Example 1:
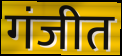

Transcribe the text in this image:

गंजीत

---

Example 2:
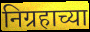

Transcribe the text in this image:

निग्रहाच्या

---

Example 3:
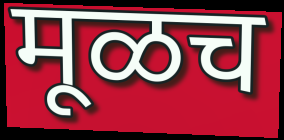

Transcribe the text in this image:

मूळच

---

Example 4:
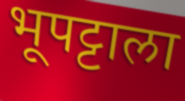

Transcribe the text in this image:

भूपट्टाला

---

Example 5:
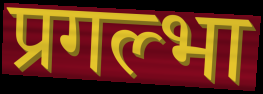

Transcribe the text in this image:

प्रगल्भा